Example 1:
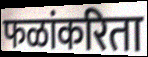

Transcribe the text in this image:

फळांकरिता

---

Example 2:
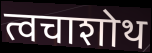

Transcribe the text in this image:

त्वचाशोथ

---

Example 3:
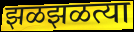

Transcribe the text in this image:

झळझळत्या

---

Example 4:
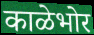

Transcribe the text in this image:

काळेभोर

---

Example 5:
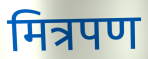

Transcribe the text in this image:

मित्रपण